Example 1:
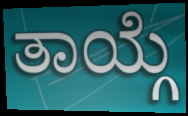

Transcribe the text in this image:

ತಾಯ್ಗೆ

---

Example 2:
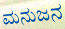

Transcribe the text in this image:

ಮನುಜನ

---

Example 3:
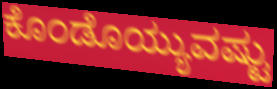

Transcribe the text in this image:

ಕೊಂಡೊಯ್ಯುವಷ್ಟು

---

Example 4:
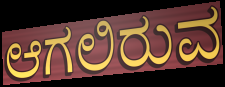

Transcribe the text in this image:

ಆಗಲಿರುವ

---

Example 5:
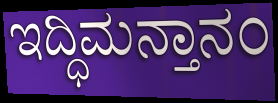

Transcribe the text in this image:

ಇದ್ಧಿಮನ್ತಾನಂ